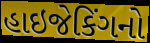
હાઇજેકિંગનો